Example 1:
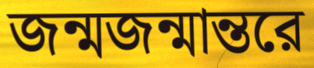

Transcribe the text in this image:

জন্মজন্মান্তরে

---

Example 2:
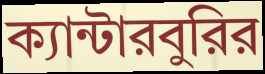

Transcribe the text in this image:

ক্যান্টারবুরির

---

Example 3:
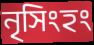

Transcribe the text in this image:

নৃসিংহং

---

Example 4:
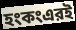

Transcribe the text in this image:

হংকংএরই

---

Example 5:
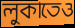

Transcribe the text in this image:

লুকাতেও